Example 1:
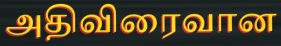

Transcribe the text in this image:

அதிவிரைவான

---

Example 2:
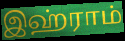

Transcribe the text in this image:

இஹ்ராம்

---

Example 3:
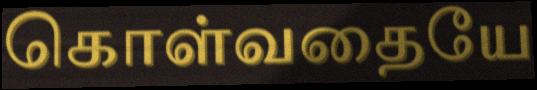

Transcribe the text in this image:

கொள்வதையே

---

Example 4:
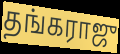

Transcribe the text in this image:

தங்கராஜு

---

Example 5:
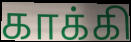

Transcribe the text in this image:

காக்கி